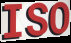
ISO